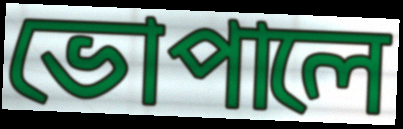
ভোপালে